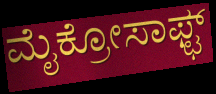
ಮೈಕ್ರೋಸಾಫ್ಟ್